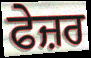
ਫੇਜ਼ਰ